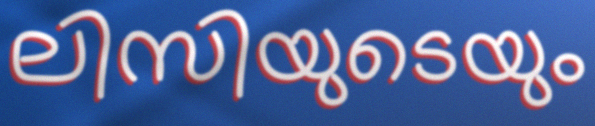
ലിസിയുടെയും